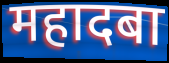
महादबा